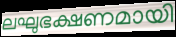
ലഘുഭക്ഷണമായി